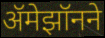
ॲमेझॉनने